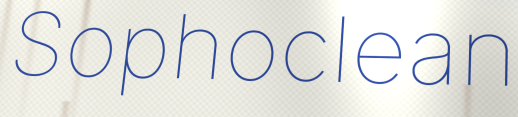
Sophoclean